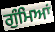
ਗੁੰਮਿਆਂ